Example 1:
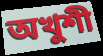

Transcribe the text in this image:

অখুশী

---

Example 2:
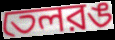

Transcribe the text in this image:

তেলরঙ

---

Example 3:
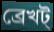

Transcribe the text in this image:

ব্রেখট্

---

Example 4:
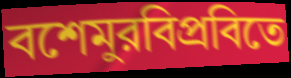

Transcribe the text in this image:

বশেমুরবিপ্রবিতে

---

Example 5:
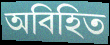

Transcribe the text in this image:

অবিহিত